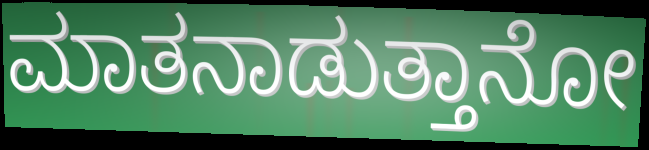
ಮಾತನಾಡುತ್ತಾನೋ